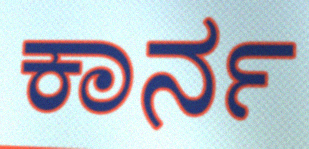
ಕಾರ್ನ